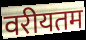
वरीयतम